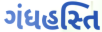
ગંધહસ્તિ